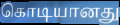
கொடியானது